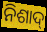
ନିଶାଦ୍